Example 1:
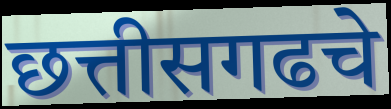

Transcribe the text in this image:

छत्तीसगढचे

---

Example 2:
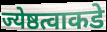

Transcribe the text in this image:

ज्येष्ठत्वाकडे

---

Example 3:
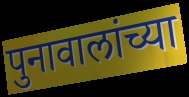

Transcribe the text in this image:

पुनावालांच्या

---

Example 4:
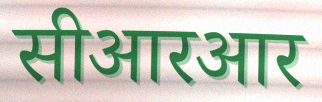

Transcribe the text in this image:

सीआरआर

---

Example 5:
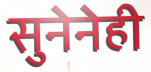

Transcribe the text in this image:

सुनेनेही